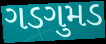
ગડગુમડ